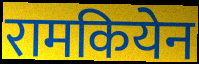
रामकियेन